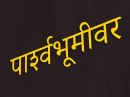
पार्श्‍वभूमीवर